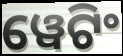
ୱେଟିଂ